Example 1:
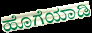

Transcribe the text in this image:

ಹೊಗೆಯಾಡಿ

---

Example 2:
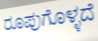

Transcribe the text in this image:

ರೂಪುಗೊಳ್ಳದೆ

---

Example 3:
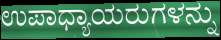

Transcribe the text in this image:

ಉಪಾಧ್ಯಾಯರುಗಳನ್ನು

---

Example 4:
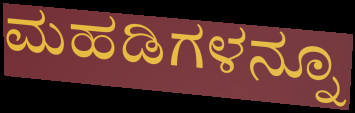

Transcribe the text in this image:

ಮಹಡಿಗಳನ್ನೂ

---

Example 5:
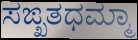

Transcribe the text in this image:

ಸಙ್ಖತಧಮ್ಮಾ